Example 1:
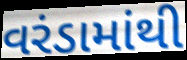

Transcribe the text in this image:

વરંડામાંથી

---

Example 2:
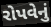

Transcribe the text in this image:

રોપવેનું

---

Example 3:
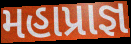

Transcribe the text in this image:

મહાપ્રાજ્ઞ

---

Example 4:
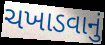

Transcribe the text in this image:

ચખાડવાનું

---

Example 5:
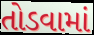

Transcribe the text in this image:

તોડવામાં